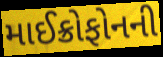
માઈક્રોફોનની